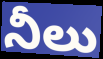
నీలు